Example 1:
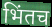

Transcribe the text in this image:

भिंतच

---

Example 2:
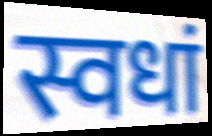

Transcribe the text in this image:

स्वधां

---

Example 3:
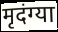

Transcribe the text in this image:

मृदंग्या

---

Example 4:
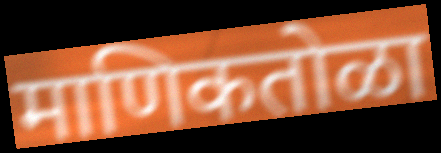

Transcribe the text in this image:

माणिकतोळा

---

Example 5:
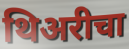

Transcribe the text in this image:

थिअरीचा